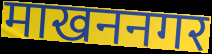
माखननगर